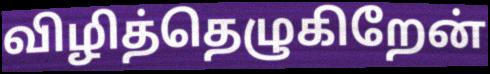
விழித்தெழுகிறேன்